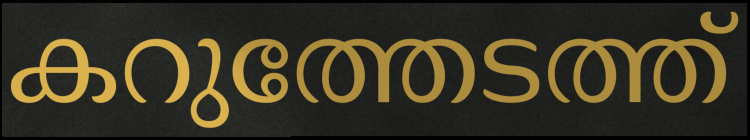
കറുത്തേടത്ത്